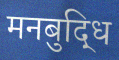
मनबुद्धि